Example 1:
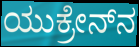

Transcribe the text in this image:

ಯುಕ್ರೇನ್‌ನ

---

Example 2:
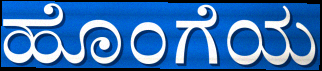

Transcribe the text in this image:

ಹೊಂಗೆಯ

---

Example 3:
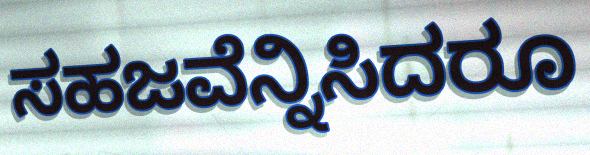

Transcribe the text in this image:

ಸಹಜವೆನ್ನಿಸಿದರೂ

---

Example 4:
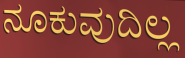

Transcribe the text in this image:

ನೂಕುವುದಿಲ್ಲ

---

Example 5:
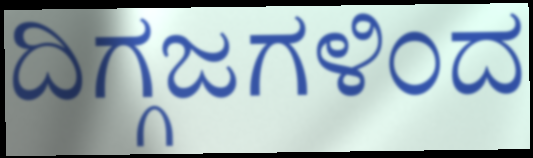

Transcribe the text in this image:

ದಿಗ್ಗಜಗಳಿಂದ